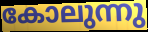
കോലുന്നു